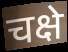
चक्षे